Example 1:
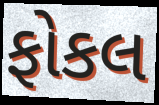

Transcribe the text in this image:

ફોકલ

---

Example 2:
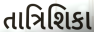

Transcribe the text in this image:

તાત્રિશિકા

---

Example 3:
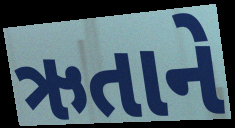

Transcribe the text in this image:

ઋતાને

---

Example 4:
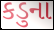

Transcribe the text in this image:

કડુના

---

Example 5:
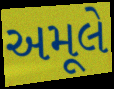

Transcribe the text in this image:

અમૂલે